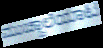
ಮುಚ್ಚಾಲೆಯಾಟ